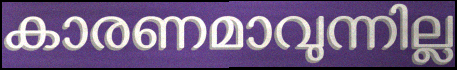
കാരണമാവുന്നില്ല